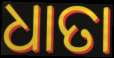
ଧାତା